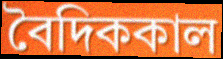
বৈদিককাল